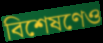
বিশেষণেও